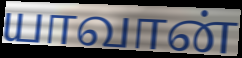
யாவான்